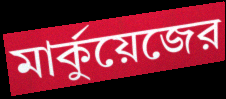
মার্কুয়েজের